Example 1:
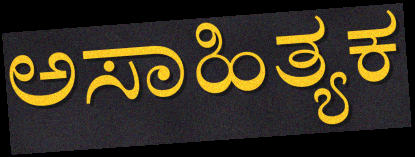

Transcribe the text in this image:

ಅಸಾಹಿತ್ಯಕ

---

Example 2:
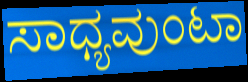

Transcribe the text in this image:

ಸಾಧ್ಯವುಂಟಾ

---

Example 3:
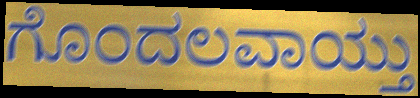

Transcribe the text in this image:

ಗೊಂದಲವಾಯ್ತು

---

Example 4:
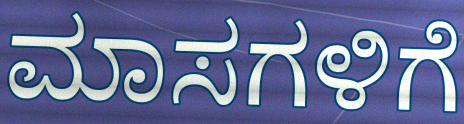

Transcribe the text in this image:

ಮಾಸಗಳಿಗೆ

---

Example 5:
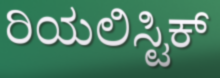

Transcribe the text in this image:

ರಿಯಲಿಸ್ಟಿಕ್